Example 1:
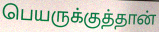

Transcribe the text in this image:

பெயருக்குத்தான்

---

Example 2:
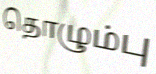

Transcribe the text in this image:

தொழும்பு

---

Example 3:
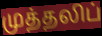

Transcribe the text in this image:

முத்தலிப்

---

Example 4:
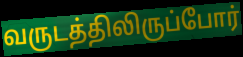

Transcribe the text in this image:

வருடத்திலிருப்போர்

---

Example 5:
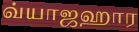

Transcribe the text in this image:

வ்யாஜஹார